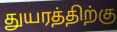
துயரத்திற்கு